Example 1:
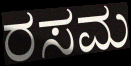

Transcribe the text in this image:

ರಸಮ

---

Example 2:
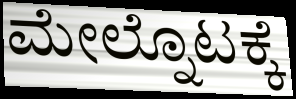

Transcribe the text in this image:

ಮೇಲ್ನೊಟಕ್ಕೆ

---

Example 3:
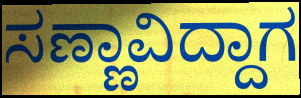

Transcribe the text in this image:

ಸಣ್ಣಾವಿದ್ದಾಗ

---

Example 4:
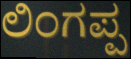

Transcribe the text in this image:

ಲಿಂಗಪ್ಪ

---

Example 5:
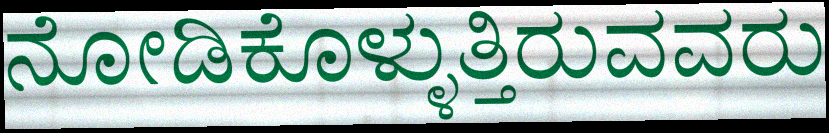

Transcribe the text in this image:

ನೋಡಿಕೊಳ್ಳುತ್ತಿರುವವರು